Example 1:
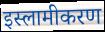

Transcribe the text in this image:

इस्लामीकरण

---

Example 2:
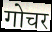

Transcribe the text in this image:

गोचर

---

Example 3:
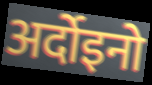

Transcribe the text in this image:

अर्दोइनो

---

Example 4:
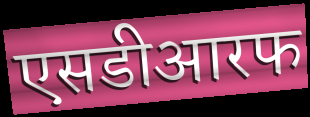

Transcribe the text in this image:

एसडीआरफ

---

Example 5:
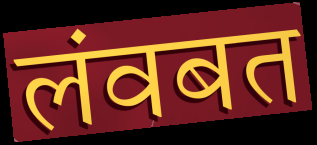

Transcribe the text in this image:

लंवबत